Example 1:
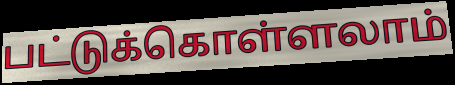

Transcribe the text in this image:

பட்டுக்கொள்ளலாம்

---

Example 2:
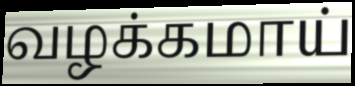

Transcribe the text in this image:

வழக்கமாய்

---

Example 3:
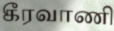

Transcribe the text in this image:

கீரவாணி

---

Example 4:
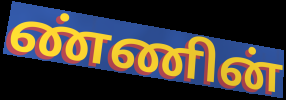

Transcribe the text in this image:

ண்ணின்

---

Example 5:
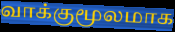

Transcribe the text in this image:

வாக்குமூலமாக